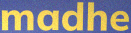
madhe